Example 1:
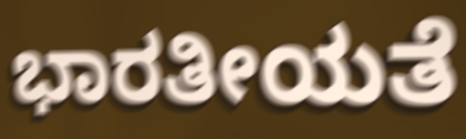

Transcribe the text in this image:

ಭಾರತೀಯತೆ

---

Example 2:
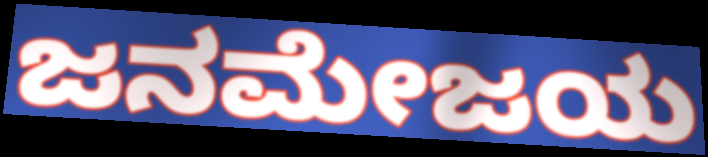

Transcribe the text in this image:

ಜನಮೇಜಯ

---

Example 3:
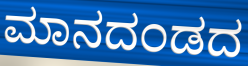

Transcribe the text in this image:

ಮಾನದಂಡದ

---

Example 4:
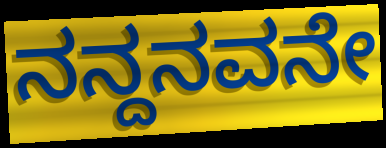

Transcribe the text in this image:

ನನ್ದನವನೇ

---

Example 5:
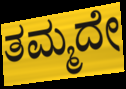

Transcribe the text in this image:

ತಮ್ಮದೇ